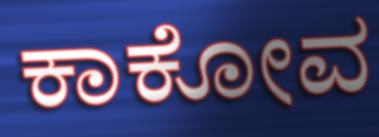
ಕಾಕೋವ